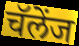
चॅलेंज